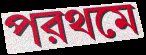
পরথমে